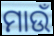
ମାଉଁ